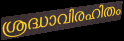
ശ്രദ്ധാവിരഹിതം